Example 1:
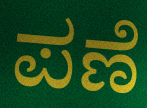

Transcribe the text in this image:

ಪಣೆ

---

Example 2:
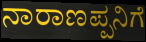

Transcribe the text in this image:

ನಾರಾಣಪ್ಪನಿಗೆ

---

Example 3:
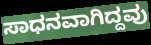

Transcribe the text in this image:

ಸಾಧನವಾಗಿದ್ದವು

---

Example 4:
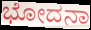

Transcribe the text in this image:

ಭೋದನಾ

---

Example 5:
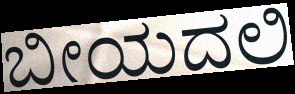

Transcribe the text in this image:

ಬೀಯದಲಿ